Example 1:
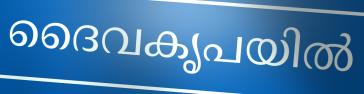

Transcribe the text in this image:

ദൈവകൃപയിൽ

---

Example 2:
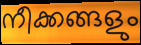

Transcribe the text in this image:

നീക്കങ്ങളും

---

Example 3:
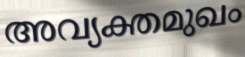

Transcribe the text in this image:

അവ്യക്തമുഖം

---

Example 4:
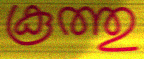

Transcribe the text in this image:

കൂത്തു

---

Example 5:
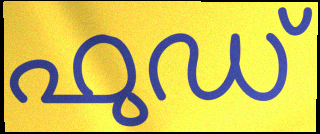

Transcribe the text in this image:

ഫുഡ്